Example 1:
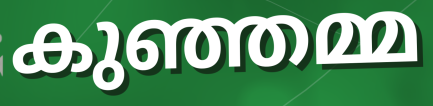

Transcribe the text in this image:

കുഞ്ഞമ്മ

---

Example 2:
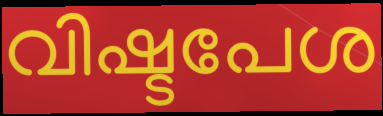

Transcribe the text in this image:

വിഷ്ടപേശ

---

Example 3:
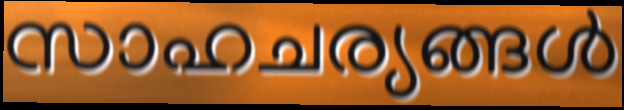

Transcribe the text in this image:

സാഹചര്യങ്ങൾ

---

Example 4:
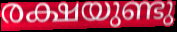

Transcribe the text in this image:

രക്ഷയുണ്ടു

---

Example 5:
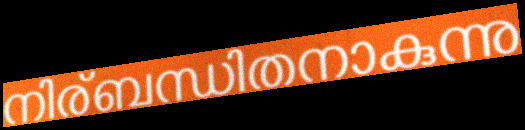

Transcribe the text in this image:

നിര്ബന്ധിതനാകുന്നു